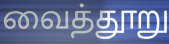
வைத்தூறு